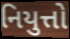
નિયુત્તો